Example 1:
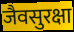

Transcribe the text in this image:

जैवसुरक्षा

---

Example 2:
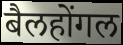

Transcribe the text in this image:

बैलहोंगल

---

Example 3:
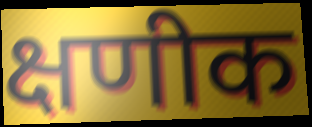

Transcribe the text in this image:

क्षणीक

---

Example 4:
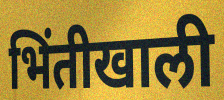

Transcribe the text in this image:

भिंतीखाली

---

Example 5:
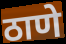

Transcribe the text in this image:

ठाणे